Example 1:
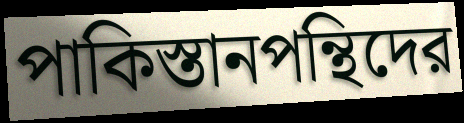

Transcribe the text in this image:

পাকিস্তানপন্থিদের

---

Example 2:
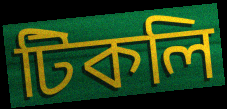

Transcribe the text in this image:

টিকলি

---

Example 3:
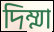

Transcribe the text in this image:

দিম্মা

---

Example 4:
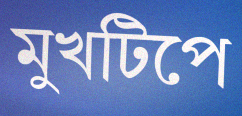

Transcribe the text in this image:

মুখটিপে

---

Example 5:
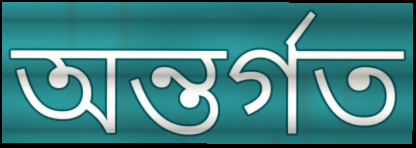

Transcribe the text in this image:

অন্তর্গত